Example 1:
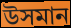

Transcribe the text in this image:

উসমান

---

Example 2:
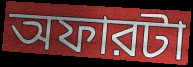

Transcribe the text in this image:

অফারটা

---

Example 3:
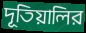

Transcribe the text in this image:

দূতিয়ালির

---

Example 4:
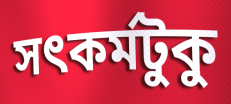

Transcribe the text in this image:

সৎকর্মটুকু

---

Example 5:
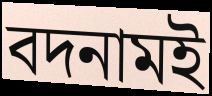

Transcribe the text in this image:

বদনামই